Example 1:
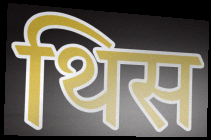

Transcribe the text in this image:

थिस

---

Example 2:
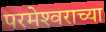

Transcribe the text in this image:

परमेश्‍वराच्या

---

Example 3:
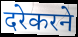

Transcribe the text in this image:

दरेकरने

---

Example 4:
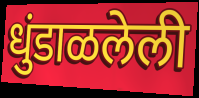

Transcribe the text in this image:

धुंडाळलेली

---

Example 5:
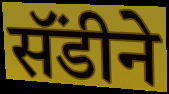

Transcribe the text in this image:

सॅंडीने